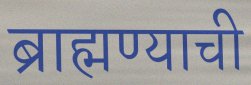
ब्राह्मण्याची